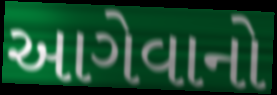
આગેવાનો